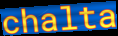
chalta